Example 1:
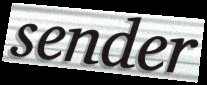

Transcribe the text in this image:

sender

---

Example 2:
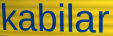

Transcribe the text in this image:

kabilar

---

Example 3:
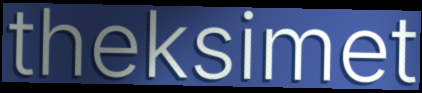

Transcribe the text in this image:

theksimet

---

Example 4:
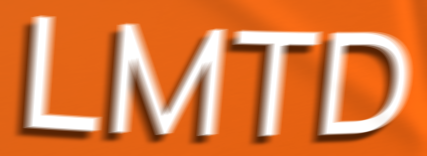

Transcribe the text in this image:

LMTD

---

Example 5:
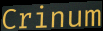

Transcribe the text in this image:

Crinum